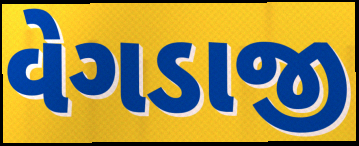
વેગડાજી